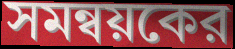
সমন্বয়কের